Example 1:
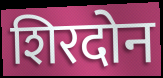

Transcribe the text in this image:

शिरदोन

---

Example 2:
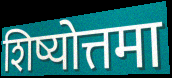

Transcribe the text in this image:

शिष्योत्तमा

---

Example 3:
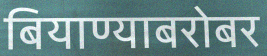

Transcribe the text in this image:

बियाण्याबरोबर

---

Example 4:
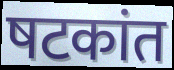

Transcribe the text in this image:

षटकांत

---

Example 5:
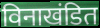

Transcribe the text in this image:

विनाखंडित